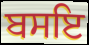
ਬਸਇ